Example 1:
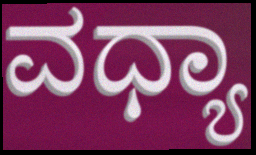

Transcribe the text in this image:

ವಧ್ಯಾ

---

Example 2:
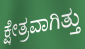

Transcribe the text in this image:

ಕ್ಷೇತ್ರವಾಗಿತ್ತು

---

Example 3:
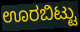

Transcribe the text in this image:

ಊರಬಿಟ್ಟು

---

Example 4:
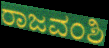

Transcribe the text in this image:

ರಾಜವಂಶಿ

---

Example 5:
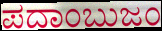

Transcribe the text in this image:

ಪದಾಂಬುಜಂ